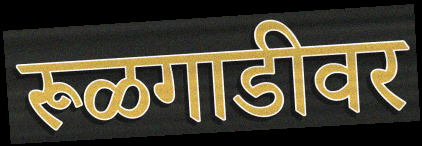
रूळगाडीवर